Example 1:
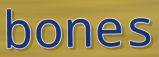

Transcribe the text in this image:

bones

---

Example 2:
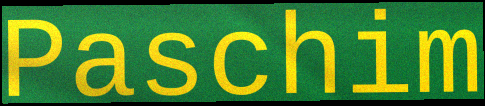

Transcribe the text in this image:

Paschim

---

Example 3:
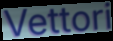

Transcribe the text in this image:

Vettori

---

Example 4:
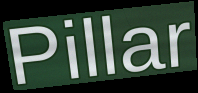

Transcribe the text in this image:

Pillar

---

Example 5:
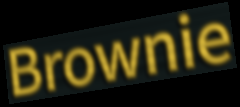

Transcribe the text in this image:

Brownie